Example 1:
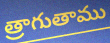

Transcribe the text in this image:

త్రాగుతాము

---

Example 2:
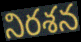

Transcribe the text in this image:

నిరశన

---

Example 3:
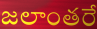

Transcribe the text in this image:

జలాంతరే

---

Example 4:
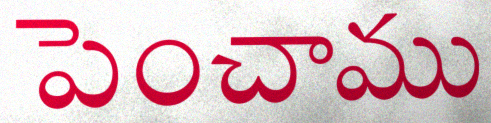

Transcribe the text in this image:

పెంచాము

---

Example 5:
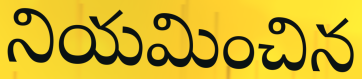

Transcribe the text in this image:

నియమించిన